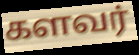
களவர்